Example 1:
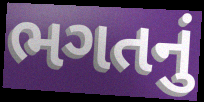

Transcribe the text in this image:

ભગતનું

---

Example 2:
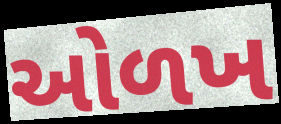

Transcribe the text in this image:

ઓળખ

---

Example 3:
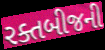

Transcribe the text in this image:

રક્તબીજની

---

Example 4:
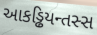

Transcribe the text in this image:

આકડ્ઢિયન્તસ્સ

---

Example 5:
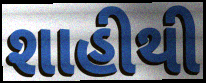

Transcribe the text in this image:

શાહીથી